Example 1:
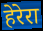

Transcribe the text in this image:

हेरेरा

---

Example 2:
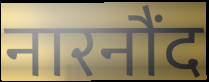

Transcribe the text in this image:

नारनौंद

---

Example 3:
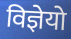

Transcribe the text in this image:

विज्ञेयो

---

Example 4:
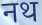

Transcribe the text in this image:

नथ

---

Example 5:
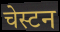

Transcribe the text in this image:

चेस्टन